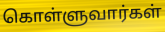
கொள்ளுவார்கள்